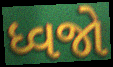
ધ્વજો